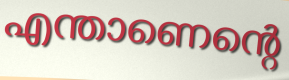
എന്താണെന്റെ